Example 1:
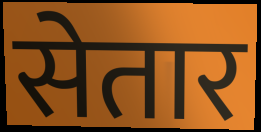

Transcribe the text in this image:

सेतार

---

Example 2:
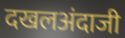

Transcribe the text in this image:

दखलअंदाजी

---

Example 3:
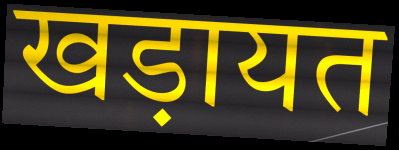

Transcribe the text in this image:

खड़ायत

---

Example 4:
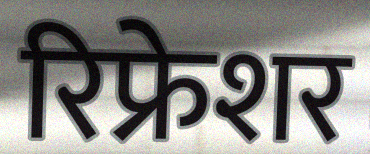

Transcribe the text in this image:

रिफ्रेशर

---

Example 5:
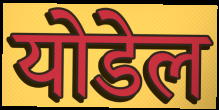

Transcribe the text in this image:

योडेल